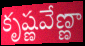
కృష్ణవేణ్ణా